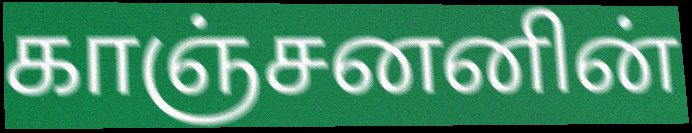
காஞ்சனனின்